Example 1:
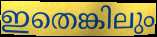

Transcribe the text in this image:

ഇതെങ്കിലും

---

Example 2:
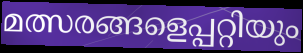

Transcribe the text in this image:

മത്സരങ്ങളെപ്പറ്റിയും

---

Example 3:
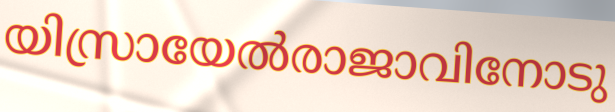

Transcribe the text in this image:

യിസ്രായേൽരാജാവിനോടു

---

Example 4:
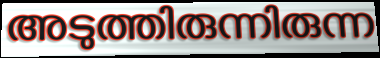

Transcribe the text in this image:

അടുത്തിരുന്നിരുന്ന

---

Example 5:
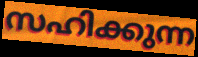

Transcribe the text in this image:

സഹിക്കുന്ന